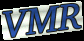
VMR